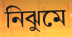
নিঝুমে